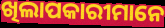
ଖିଲାପକାରୀମାନେ